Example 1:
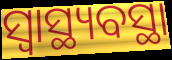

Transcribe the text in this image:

ସ୍ୱାସ୍ଥ୍ୟବସ୍ଥା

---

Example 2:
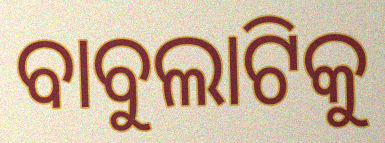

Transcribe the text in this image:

ବାବୁଲାଟିକୁ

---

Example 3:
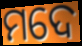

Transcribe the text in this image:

ମଦେ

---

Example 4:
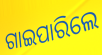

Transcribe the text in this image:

ଗାଇପାରିଲେ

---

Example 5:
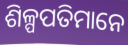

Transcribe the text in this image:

ଶିଳ୍ପପତିମାନେ